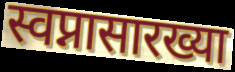
स्वप्नासारख्या